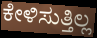
ಕೇಳಿಸುತ್ತಿಲ್ಲ